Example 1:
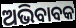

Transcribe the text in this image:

ଅଭିବାବକ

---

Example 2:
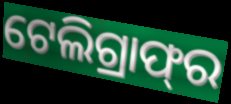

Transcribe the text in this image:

ଟେଲିଗ୍ରାଫ୍‌ର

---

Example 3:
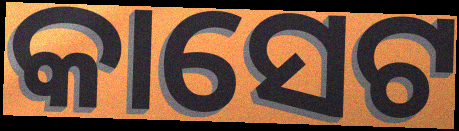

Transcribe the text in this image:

କାସେଟ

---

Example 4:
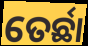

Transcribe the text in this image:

ତେର୍ଛା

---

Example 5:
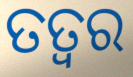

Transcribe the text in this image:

ତତ୍ଵର